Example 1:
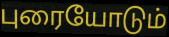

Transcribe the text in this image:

புரையோடும்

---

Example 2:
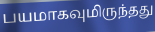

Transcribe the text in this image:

பயமாகவுமிருந்தது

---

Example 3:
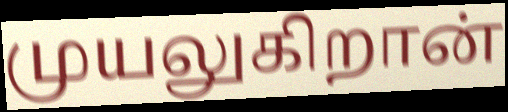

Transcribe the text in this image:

முயலுகிறான்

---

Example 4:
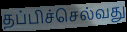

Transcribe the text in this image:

தப்பிச்செல்வது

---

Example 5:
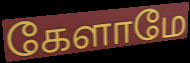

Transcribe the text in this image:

கேளாமே